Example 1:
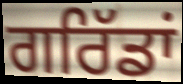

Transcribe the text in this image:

ਗਰਿੱਡਾਂ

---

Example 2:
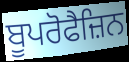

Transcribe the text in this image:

ਬੂਪਰੋਫੈਜ਼ਿਨ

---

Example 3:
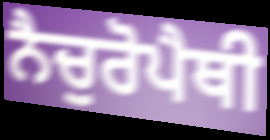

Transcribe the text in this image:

ਨੈਚੁਰੋਪੈਥੀ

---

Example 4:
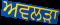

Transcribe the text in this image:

ਅਵਲੜਾ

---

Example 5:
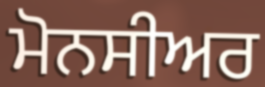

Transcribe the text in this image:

ਮੋਨਸੀਅਰ